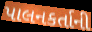
પાલનકર્તાની